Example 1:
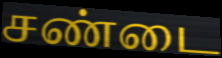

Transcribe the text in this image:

சண்டை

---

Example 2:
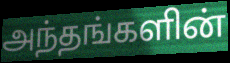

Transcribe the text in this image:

அந்தங்களின்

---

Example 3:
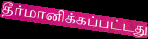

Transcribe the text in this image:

தீர்மானிக்கப்பட்டது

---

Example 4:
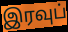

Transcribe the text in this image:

இரவுப்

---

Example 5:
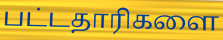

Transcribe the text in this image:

பட்டதாரிகளை